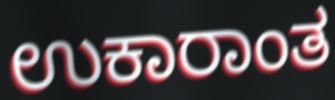
ಉಕಾರಾಂತ